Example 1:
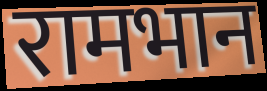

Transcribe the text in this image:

रामभान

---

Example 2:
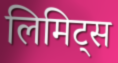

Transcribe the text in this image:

लिमिट्स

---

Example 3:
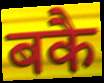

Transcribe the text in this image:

बकै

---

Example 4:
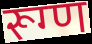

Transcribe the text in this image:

रूग्ण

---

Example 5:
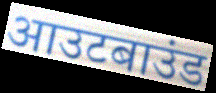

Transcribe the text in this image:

आउटबाउंड